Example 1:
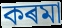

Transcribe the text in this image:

কৰমা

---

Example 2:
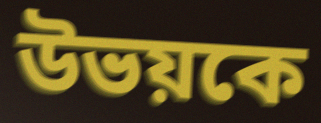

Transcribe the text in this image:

উভয়কে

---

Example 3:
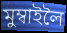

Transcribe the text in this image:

মুম্বাইলৈ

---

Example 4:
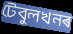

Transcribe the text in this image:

টেবুলখনৰ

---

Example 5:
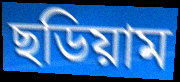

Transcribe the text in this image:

ছডিয়াম